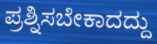
ಪ್ರಶ್ನಿಸಬೇಕಾದದ್ದು